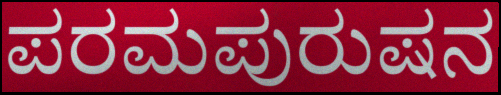
ಪರಮಪುರುಷನ